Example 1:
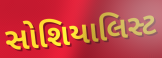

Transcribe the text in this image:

સોશિયાલિસ્ટ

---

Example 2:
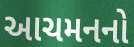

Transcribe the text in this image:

આચમનનો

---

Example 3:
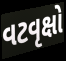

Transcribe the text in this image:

વટવૃક્ષો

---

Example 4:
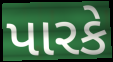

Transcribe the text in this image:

પારકે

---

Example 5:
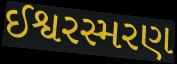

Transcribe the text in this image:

ઈશ્વરસ્મરણ